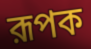
রূপক